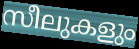
സീലുകളും